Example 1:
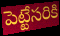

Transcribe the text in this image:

పెట్టేసరికి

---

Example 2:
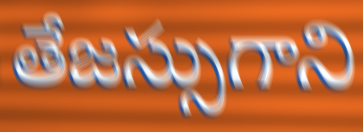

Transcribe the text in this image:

తేజస్సుగాని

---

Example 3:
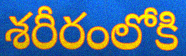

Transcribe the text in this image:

శరీరంలోకి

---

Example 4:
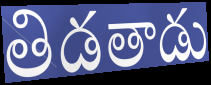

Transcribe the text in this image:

తిడతాడు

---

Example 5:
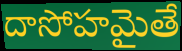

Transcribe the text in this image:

దాసోహమైతే